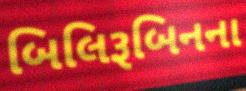
બિલિરૂબિનના